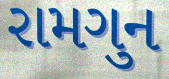
રામગુન